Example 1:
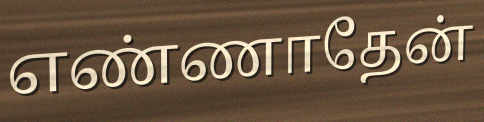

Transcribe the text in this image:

எண்ணாதேன்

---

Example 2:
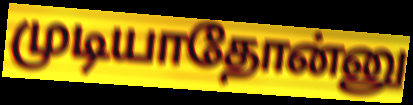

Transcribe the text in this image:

முடியாதோன்னு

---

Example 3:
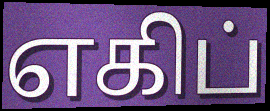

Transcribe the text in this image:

எகிப்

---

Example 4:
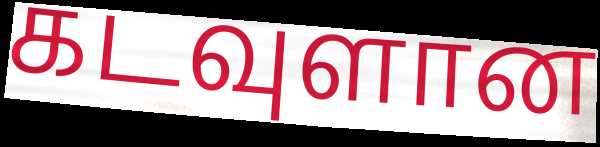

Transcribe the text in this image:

கடவுளான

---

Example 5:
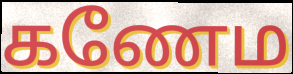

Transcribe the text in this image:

கணேம